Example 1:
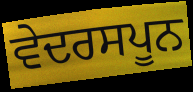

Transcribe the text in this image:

ਵੇਦਰਸਪੂਨ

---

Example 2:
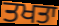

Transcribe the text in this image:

ਤਖਤਾ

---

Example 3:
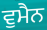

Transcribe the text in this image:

ਵੁਮੈਨ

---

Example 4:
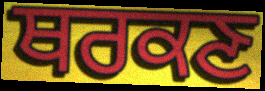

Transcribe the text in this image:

ਥਰਕਣ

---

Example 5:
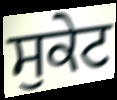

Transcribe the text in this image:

ਸੁਕੇਟ